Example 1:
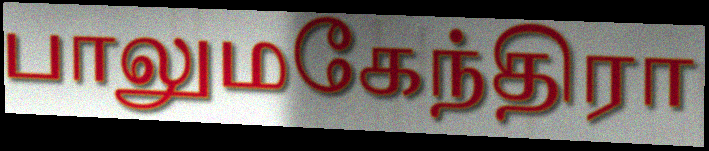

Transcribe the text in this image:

பாலுமகேந்திரா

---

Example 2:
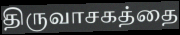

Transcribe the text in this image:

திருவாசகத்தை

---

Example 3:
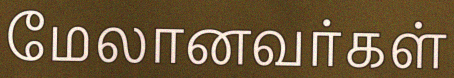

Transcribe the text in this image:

மேலானவர்கள்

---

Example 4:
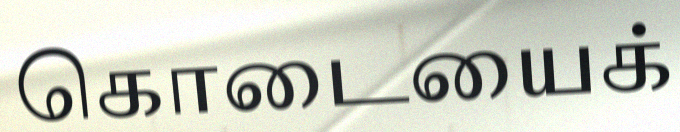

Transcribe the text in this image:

கொடையைக்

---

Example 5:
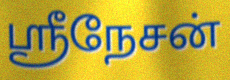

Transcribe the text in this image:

ஸ்ரீநேசன்